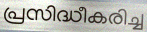
പ്രസിദ്ധീകരിച്ച